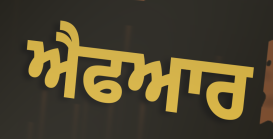
ਐਫਆਰ